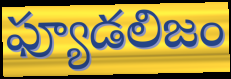
ఫ్యూడలిజం